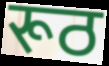
रूठ